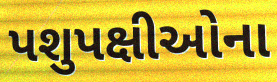
પશુપક્ષીઓના